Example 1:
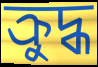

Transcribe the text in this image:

ক্ৰুদ্ধ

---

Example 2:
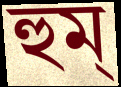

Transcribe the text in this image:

হুম্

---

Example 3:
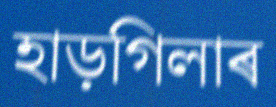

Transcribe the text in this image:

হাড়গিলাৰ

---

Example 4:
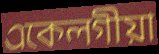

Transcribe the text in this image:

একেলগীয়া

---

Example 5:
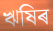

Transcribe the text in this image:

ঋষিৰ